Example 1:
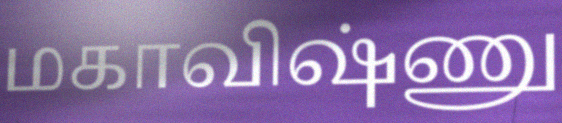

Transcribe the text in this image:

மகாவிஷ்ணு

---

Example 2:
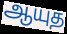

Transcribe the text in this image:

ஆயுத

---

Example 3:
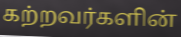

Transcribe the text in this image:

கற்றவர்களின்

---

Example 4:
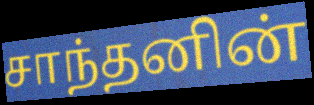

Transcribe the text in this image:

சாந்தனின்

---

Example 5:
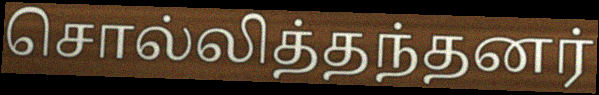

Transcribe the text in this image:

சொல்லித்தந்தனர்